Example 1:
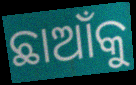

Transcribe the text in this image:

ଛାଆଁକୁ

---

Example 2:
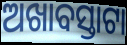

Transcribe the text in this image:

ଅଖାବସ୍ତାଟା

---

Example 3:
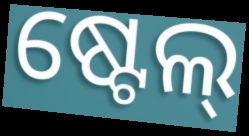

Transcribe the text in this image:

ଷ୍ଟେଲ୍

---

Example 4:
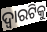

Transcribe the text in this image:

ଦ୍ଵାରଟିକୁ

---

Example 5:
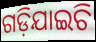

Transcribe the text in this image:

ଗଡ଼ିଯାଇଚି